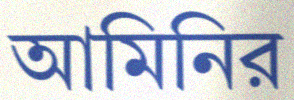
আমিনির